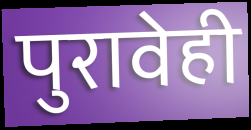
पुरावेही